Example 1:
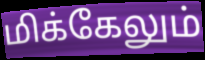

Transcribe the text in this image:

மிக்கேலும்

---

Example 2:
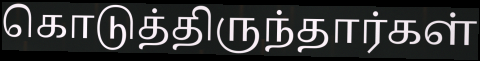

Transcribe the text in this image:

கொடுத்திருந்தார்கள்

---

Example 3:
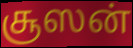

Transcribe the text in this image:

சூஸன்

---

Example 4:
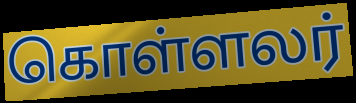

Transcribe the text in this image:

கொள்ளலர்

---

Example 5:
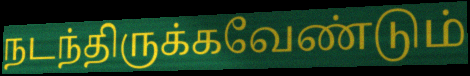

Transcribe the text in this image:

நடந்திருக்கவேண்டும்